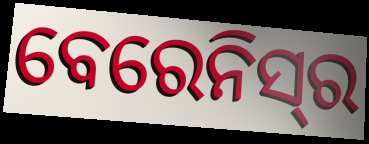
ବେରେନିସ୍‌ର